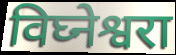
विघ्नेश्वरा